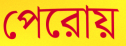
পেরোয়